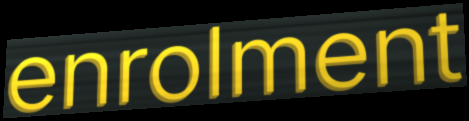
enrolment